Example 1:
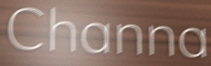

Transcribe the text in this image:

Channa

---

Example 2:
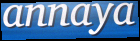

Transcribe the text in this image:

annaya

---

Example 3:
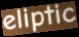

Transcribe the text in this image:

eliptic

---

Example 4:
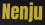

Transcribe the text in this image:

Nenju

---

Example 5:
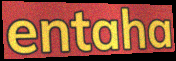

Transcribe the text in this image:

entaha